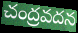
చంద్రవదన